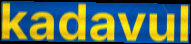
kadavul